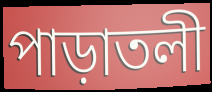
পাড়াতলী